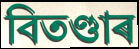
বিতণ্ডাৰ